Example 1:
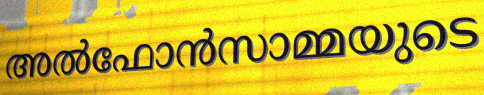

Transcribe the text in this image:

അൽഫോൻസാമ്മയുടെ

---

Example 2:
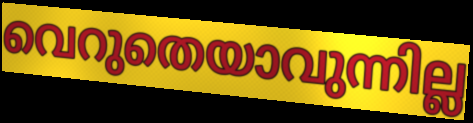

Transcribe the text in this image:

വെറുതെയാവുന്നില്ല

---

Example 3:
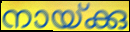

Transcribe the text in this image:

നായ്‌ക്കു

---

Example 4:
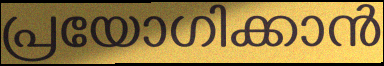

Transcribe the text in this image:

പ്രയോഗിക്കാൻ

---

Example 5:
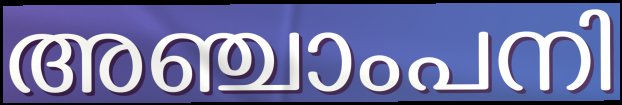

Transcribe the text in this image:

അഞ്ചാംപനി